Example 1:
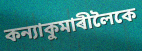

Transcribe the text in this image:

কন্যাকুমাৰীলৈকে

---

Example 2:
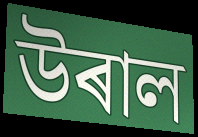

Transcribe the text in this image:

উৰাল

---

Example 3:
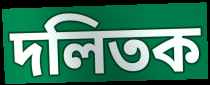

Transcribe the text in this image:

দলিতক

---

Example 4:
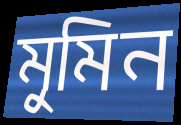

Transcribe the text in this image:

মুমিন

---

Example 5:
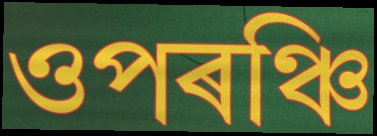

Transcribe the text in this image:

ওপৰঞ্চি